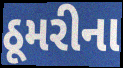
ઠૂમરીના